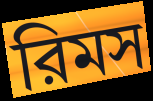
রিমস